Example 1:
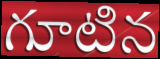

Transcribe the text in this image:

గూటిన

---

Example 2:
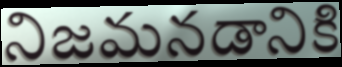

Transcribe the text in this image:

నిజమనడానికి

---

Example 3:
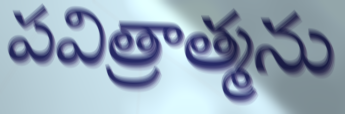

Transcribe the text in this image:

పవిత్రాత్మను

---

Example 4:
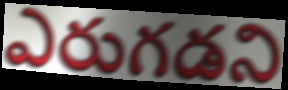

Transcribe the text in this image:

ఎరుగడని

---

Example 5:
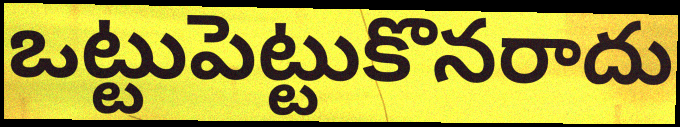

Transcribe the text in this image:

ఒట్టుపెట్టుకొనరాదు